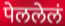
पेललेलं